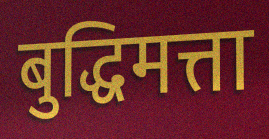
बुद्धिमत्ता